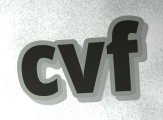
cvf